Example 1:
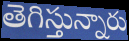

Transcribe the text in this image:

తెగిస్తున్నారు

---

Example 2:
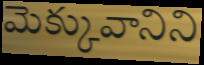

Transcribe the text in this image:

మెక్కువానిని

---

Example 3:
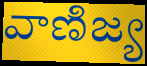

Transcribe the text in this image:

వాణిజ్య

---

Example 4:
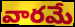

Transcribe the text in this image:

వారమే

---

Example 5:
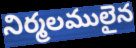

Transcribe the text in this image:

నిర్మలములైన